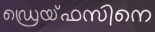
ഡ്രെയ്ഫസിനെ